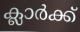
ക്ലാർക്ക്